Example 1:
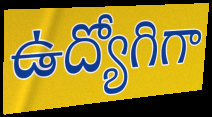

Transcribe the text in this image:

ఉద్యోగిగా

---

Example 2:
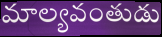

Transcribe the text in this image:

మాల్యవంతుడు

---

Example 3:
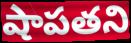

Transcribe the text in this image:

షాపతని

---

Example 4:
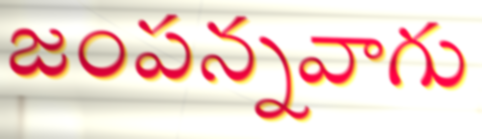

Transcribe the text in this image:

జంపన్నవాగు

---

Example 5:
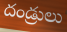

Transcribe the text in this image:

దండ్రులు